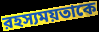
রহস্যময়তাকে